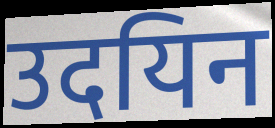
उदयिन